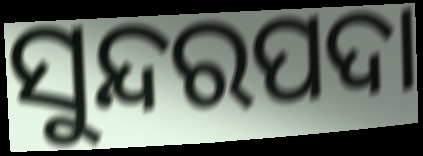
ସୁନ୍ଦରପଦା